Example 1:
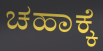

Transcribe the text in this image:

ಚಹಾಕ್ಕೆ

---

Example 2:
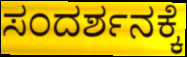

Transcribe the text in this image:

ಸಂದರ್ಶನಕ್ಕೆ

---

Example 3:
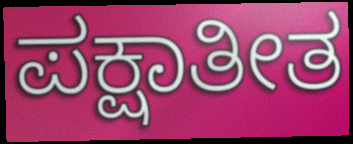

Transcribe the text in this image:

ಪಕ್ಷಾತೀತ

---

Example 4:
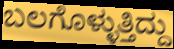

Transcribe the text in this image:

ಬಲಗೊಳ್ಳುತ್ತಿದ್ದು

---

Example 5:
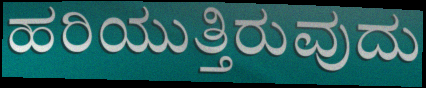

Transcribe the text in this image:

ಹರಿಯುತ್ತಿರುವುದು